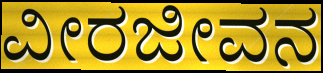
ವೀರಜೀವನ